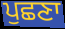
ਪੁਛਣਾ